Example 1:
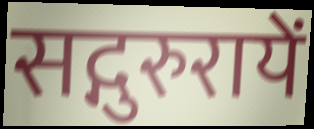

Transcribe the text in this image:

सद्गुरुरायें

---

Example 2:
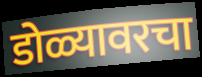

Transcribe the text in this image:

डोळ्यावरचा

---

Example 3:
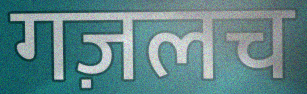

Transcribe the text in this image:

गज़लच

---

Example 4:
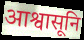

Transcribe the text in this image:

आश्वासूनि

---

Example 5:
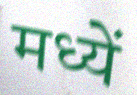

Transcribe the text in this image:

मध्यें